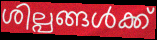
ശില്പങ്ങൾക്ക്